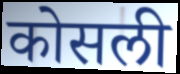
कोसली